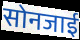
सोनजाई